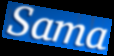
Sama